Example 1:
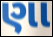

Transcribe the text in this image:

ણા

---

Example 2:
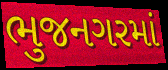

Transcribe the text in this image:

ભુજનગરમાં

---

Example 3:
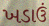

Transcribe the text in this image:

ખડાઉં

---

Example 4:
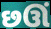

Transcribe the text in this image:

છઊં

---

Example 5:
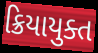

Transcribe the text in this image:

ક્રિયાયુક્ત